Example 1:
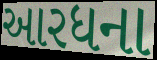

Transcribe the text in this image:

આરધના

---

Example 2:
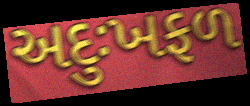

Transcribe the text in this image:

અદુઃખફળ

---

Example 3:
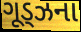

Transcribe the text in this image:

ગૂડ્ઝના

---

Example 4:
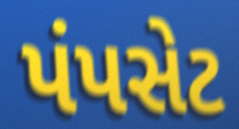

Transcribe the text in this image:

પંપસેટ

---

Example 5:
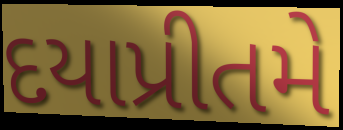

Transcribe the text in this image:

દયાપ્રીતમે